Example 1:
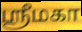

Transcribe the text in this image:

ஸ்ரீமகா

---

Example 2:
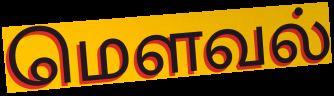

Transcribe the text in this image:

மௌவல்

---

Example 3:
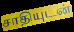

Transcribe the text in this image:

சாதியுடன்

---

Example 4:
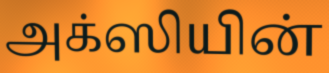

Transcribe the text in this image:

அக்ஸியின்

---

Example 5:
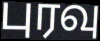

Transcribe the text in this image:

புரவு